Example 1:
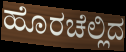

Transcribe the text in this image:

ಹೊರಚೆಲ್ಲಿದ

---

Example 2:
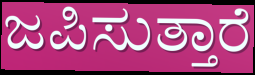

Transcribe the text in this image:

ಜಪಿಸುತ್ತಾರೆ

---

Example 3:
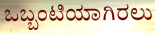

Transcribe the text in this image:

ಒಬ್ಬಂಟಿಯಾಗಿರಲು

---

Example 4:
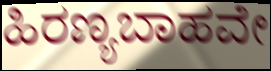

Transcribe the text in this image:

ಹಿರಣ್ಯಬಾಹವೇ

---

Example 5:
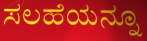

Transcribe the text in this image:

ಸಲಹೆಯನ್ನೂ